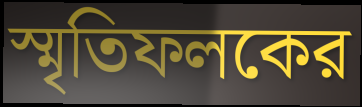
স্মৃতিফলকের